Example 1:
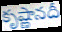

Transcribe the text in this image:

కృష్ణానదీ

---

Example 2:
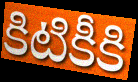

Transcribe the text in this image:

కిటికీకి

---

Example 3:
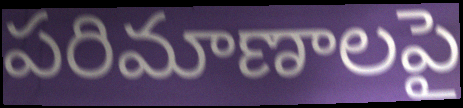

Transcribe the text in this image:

పరిమాణాలపై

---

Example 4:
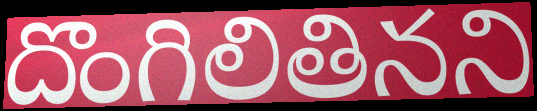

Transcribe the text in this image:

దొంగిలితినని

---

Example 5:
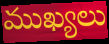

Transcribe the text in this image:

ముఖ్యలు